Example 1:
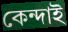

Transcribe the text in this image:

কেন্দাই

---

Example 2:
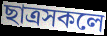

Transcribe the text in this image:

ছাত্ৰসকলে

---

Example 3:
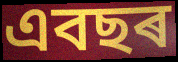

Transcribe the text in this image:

এবছৰ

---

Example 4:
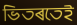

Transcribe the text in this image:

ভিতৰতেই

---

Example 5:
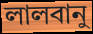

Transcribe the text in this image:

লালবানু